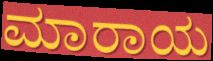
ಮಾರಾಯ